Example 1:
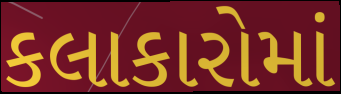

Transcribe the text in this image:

કલાકારોમાં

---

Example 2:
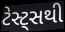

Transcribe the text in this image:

ટેસ્ટ્સથી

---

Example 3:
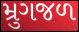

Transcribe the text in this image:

મ્રુગજળ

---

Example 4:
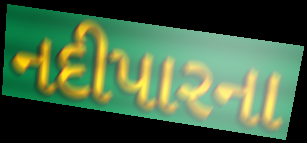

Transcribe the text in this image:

નદીપારના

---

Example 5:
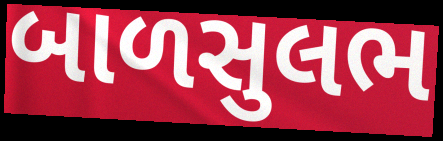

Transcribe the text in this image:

બાળસુલભ